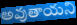
అవుతాయని